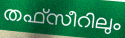
തഫ്സീറിലും